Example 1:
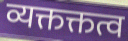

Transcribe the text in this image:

व्यक्तक्तत्व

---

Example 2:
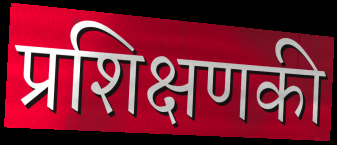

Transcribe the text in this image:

प्रशिक्षणकी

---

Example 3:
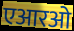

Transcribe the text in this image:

एआरओ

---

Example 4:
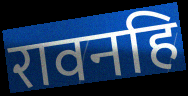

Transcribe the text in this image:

रावनहि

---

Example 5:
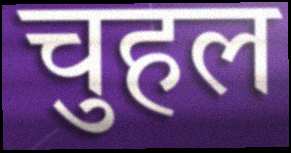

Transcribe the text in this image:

चुहल